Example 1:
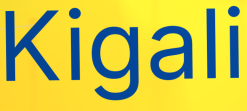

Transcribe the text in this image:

Kigali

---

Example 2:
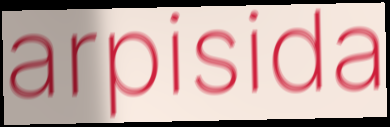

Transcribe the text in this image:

arpisida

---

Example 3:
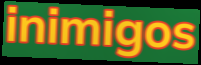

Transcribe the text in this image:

inimigos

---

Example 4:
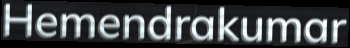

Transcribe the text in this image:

Hemendrakumar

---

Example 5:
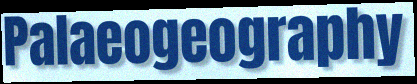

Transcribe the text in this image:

Palaeogeography